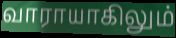
வாராயாகிலும்